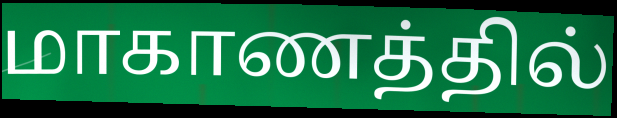
மாகாணத்தில்